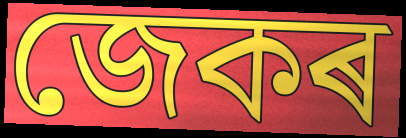
জেকৰ